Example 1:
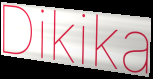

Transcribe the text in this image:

Dikika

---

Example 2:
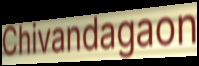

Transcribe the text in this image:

Chivandagaon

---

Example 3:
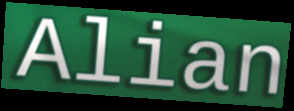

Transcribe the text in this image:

Alian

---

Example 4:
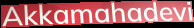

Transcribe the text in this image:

Akkamahadevi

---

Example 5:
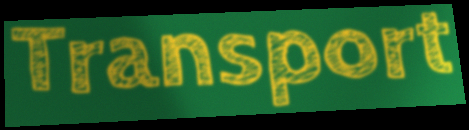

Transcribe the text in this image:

Transport